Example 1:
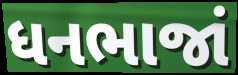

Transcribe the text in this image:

ધનભાજાં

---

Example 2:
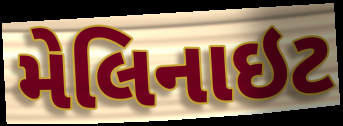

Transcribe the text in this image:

મેલિનાઇટ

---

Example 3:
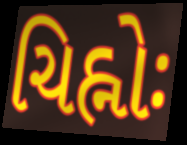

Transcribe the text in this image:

ચિહ્નોઃ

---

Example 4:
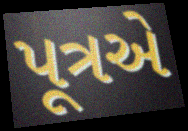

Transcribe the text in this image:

પૂત્રએ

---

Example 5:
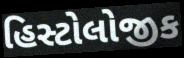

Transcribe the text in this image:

હિસ્ટોલોજીક